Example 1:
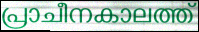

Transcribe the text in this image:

പ്രാചീനകാലത്ത്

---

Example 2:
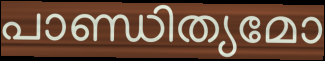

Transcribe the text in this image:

പാണ്ഡിത്യമോ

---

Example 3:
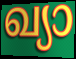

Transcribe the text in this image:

ഖ്യാ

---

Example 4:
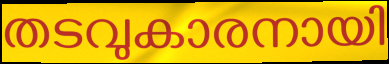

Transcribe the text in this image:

തടവുകാരനായി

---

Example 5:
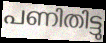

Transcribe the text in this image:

പണിതിട്ടു